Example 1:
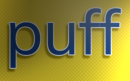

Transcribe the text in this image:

puff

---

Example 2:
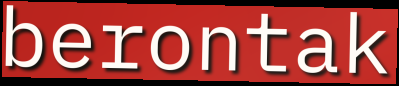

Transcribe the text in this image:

berontak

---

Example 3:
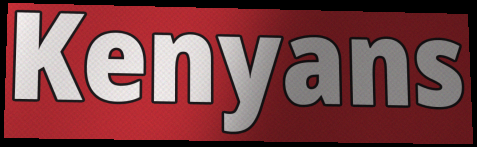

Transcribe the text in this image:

Kenyans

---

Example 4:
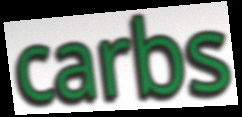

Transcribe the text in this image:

carbs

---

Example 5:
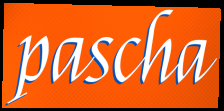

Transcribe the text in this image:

pascha